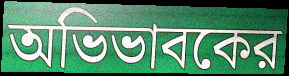
অভিভাবকের